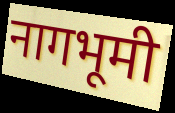
नागभूमी